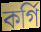
কর্গি